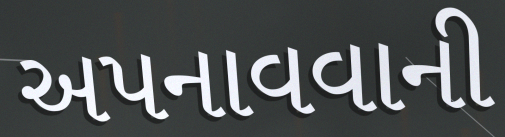
અપનાવવાની